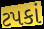
ટપકાં